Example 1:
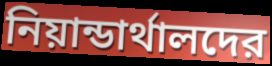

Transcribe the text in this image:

নিয়ান্ডার্থালদের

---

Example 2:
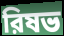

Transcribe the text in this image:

রিষভ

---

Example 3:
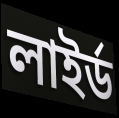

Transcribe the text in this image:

লাইর্ড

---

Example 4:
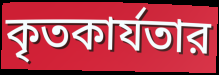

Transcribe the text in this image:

কৃতকার্যতার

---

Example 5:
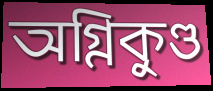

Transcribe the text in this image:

অগ্নিকুণ্ড